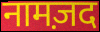
नामज़द